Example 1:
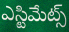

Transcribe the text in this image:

ఎస్టిమేట్స్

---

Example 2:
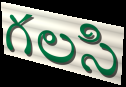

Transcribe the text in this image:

గలసి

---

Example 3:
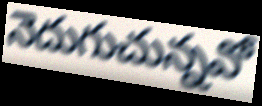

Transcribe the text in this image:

నెదుగుచున్నవో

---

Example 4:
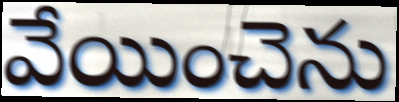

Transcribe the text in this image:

వేయించెను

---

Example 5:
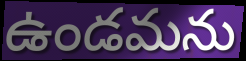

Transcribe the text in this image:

ఉండమను